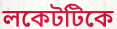
লকেটটিকে